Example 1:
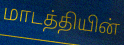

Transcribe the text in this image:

மாடத்தியின்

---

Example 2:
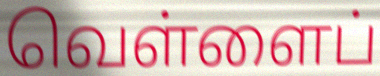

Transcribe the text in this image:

வெள்ளைப்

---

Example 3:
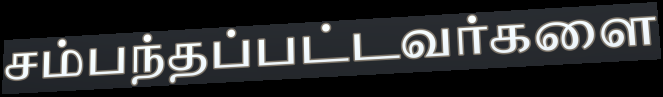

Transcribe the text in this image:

சம்பந்தப்பட்டவர்களை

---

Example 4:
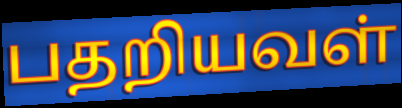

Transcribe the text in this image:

பதறியவள்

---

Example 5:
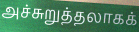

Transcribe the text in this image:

அச்சுறுத்தலாகக்